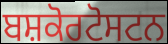
ਬਸ਼ਕੋਰਟੋਸਟਨ